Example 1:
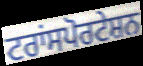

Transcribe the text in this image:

ਟਰਾਂਸਪੋਰਟੇਸ਼ਨ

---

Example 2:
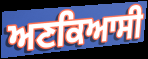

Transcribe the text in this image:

ਅਣਕਿਆਸੀ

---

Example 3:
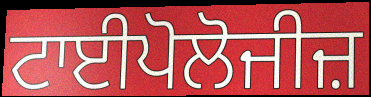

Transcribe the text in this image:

ਟਾਈਪੋਲੋਜੀਜ਼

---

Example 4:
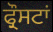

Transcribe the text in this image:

ਫ੍ਰੌਸਟਾਂ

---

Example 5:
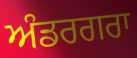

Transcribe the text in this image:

ਅੰਡਰਗਰਾ